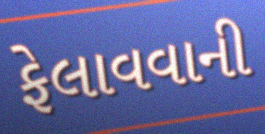
ફેલાવવાની